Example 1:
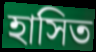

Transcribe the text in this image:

হাসিত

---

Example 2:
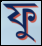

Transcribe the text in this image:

ফু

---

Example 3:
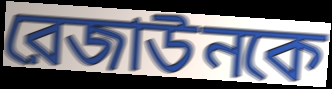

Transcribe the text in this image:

রেজাউনকে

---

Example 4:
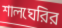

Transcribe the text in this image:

শালঘেরির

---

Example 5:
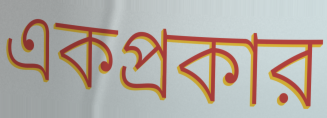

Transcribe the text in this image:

একপ্রকার